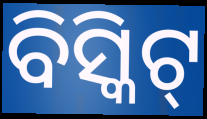
ବିସ୍କିଟ୍